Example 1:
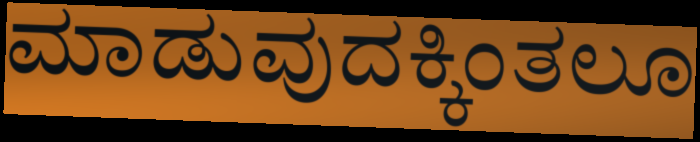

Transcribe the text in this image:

ಮಾಡುವುದಕ್ಕಿಂತಲೂ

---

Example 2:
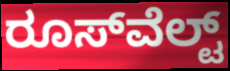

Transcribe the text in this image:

ರೂಸ್‍ವೆಲ್ಟ್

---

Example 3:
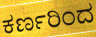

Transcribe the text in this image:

ಕರ್ಣರಿಂದ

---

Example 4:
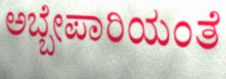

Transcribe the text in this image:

ಅಬ್ಬೇಪಾರಿಯಂತೆ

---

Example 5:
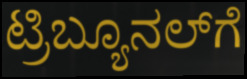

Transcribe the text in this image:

ಟ್ರಿಬ್ಯೂನಲ್‌ಗೆ